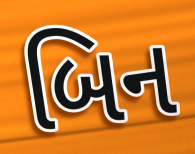
બિન